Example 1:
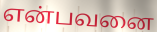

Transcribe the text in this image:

என்பவனை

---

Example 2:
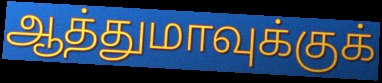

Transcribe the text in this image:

ஆத்துமாவுக்குக்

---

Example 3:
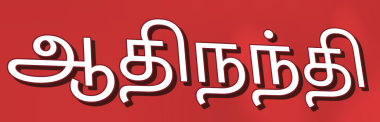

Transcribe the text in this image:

ஆதிநந்தி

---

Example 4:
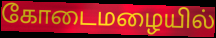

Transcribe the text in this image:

கோடைமழையில்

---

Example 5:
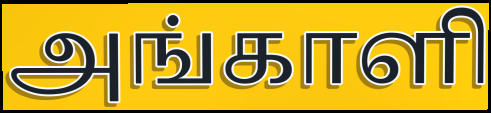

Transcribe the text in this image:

அங்காளி